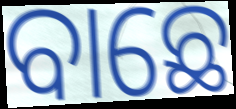
ବାଛେ